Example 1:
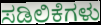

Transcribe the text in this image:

ಸಡಿಲಿಕೆಗಳು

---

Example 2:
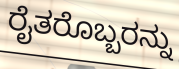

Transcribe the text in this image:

ರೈತರೊಬ್ಬರನ್ನು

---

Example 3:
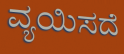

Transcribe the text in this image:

ವ್ಯಯಿಸದೆ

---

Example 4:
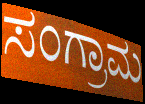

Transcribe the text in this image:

ಸಂಗ್ರಾಮ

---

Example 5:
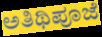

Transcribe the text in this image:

ಅತಿಥಿಪೂಜೆ